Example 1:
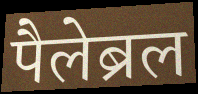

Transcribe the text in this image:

पैलेब्रल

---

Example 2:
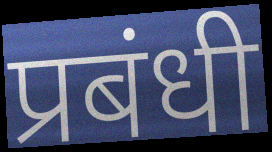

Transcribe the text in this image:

प्रबंधी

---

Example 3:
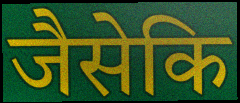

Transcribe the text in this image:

जैसेकि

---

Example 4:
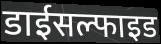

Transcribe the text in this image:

डाईसल्फाइड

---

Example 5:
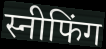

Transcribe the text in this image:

स्नीफिंग